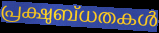
പ്രക്ഷുബ്ധതകൾ